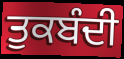
ਤੁਕਬੰਦੀ